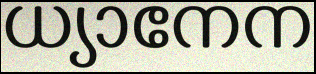
ധ്യാനേന